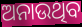
ଅନାଉଥିବ